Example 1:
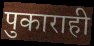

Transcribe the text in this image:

पुकाराही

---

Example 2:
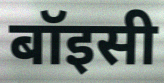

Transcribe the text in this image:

बॉइसी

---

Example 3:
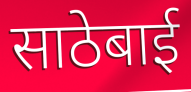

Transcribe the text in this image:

साठेबाई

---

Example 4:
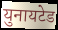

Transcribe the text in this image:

युनायटेड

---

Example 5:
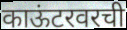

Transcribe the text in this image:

काऊंटरवरची